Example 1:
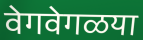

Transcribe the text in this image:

वेगवेगळया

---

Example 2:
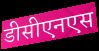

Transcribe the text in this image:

डीसीएनएस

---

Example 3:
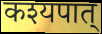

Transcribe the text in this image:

कश्यपात्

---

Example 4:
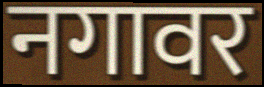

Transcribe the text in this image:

नगावर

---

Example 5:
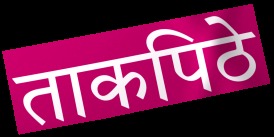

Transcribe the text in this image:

ताकपिठे